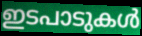
ഇടപാടുകൾ